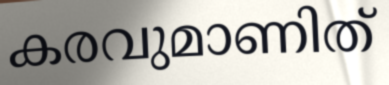
കരവുമാണിത്